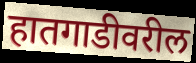
हातगाडीवरील